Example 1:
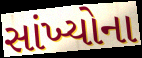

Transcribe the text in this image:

સાંખ્યોના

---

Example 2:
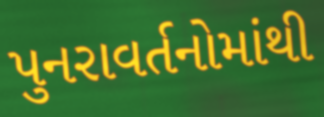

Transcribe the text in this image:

પુનરાવર્તનોમાંથી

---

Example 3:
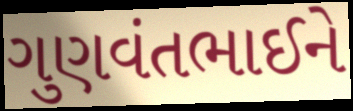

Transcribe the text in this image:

ગુણવંતભાઈને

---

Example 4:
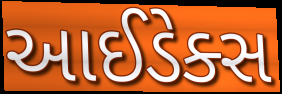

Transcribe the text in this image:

આઈડેક્સ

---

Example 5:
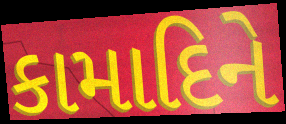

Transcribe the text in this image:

કામાદિને